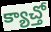
క్యాచ్తో